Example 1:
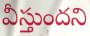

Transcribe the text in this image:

వీస్తుందని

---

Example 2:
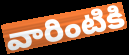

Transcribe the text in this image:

వారింటికి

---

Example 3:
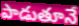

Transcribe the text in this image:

పాడుతూనే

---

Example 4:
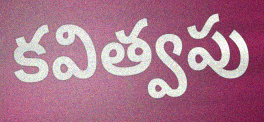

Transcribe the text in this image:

కవిత్వపు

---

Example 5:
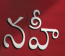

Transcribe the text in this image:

నహీ